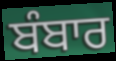
ਬੰਬਾਰ